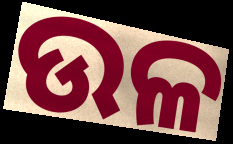
ଉଳ